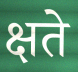
क्षते